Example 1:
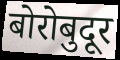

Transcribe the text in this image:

बोरोबुदूर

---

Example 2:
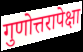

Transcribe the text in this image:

गुणोत्तरापेक्षा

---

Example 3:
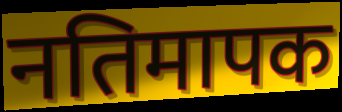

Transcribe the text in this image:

नतिमापक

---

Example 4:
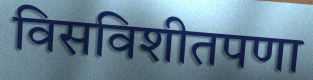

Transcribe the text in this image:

विसविशीतपणा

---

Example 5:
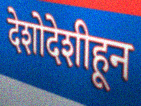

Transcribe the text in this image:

देशोदेशीहून